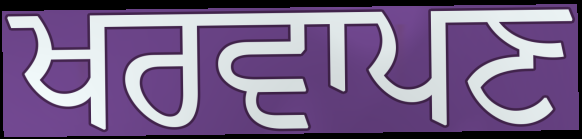
ਖਰਵਾਪਣ